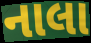
નાલા